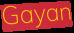
Gayan